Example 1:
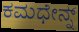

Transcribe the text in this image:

ಕಮಧೇನ್ನ್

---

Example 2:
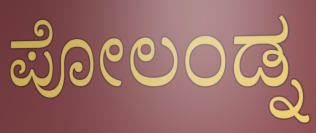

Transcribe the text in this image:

ಪೋಲಂಡ್ನ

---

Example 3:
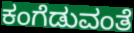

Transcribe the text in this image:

ಕಂಗೆಡುವಂತೆ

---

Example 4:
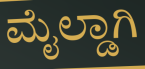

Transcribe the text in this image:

ಮೈಲ್ಡಾಗಿ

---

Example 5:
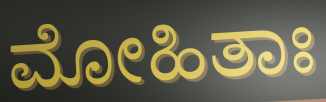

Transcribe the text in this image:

ಮೋಹಿತಾಃ